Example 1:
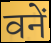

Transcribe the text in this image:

वनें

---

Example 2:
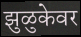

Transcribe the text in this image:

झुळुकेवर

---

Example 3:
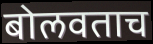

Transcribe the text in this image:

बोलवताच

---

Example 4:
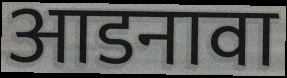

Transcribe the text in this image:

आडनावा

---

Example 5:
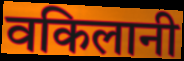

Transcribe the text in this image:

वकिलानी